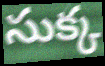
సుక్క